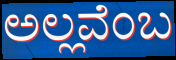
ಅಲ್ಲವೆಂಬ